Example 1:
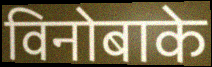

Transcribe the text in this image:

विनोबाके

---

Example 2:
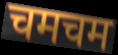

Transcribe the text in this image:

चमचम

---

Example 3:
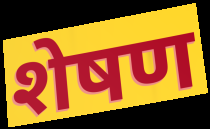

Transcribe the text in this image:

शेषण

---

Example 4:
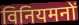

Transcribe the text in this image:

विनियमनों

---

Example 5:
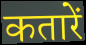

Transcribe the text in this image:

कतारें